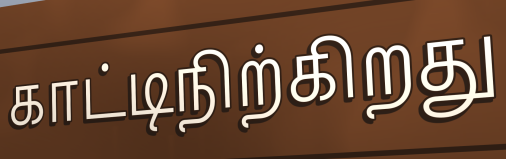
காட்டிநிற்கிறது